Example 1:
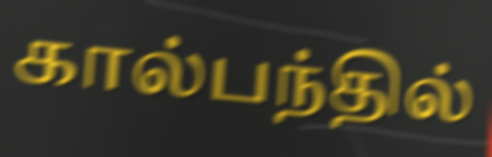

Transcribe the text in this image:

கால்பந்தில்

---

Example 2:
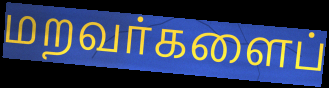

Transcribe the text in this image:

மறவர்களைப்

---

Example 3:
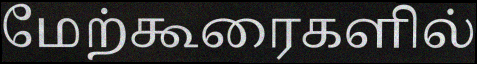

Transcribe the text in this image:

மேற்கூரைகளில்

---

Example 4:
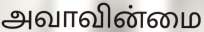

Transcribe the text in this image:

அவாவின்மை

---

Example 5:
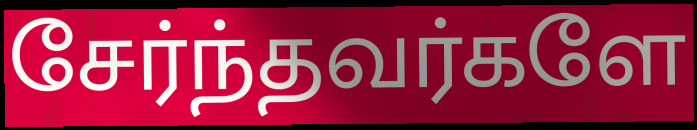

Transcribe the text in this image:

சேர்ந்தவர்களே